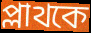
প্লাথকে